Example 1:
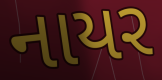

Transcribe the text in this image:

નાયર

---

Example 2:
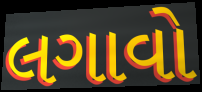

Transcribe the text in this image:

લગાવો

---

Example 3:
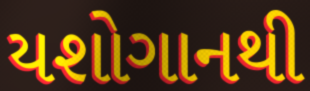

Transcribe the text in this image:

યશોગાનથી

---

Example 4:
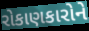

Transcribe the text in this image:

રોકાણકારોને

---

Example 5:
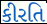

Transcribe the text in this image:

કીરતિ